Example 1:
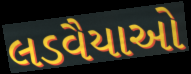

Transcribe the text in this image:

લડવૈયાઓ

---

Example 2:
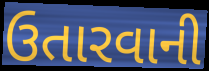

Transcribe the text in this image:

ઉતારવાની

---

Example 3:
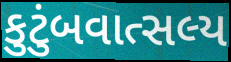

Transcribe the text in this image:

કુટુંબવાત્સલ્ય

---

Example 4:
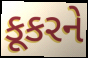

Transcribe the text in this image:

કૂકરને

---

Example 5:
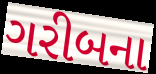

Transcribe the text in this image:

ગરીબના